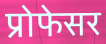
प्रोफेसर